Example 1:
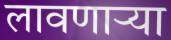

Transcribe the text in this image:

लावणाऱ्या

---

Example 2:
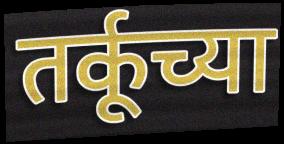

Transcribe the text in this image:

तर्कूच्या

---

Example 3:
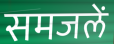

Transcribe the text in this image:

समजलें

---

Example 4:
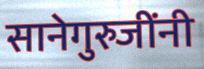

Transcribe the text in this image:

सानेगुरुजींनी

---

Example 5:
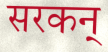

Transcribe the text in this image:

सरकन्